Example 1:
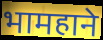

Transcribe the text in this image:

भामहाने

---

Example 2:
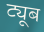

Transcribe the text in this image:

ट्यूब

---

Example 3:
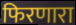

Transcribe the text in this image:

फिरणारा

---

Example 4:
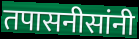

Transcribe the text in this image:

तपासनीसांनी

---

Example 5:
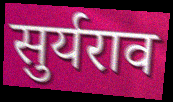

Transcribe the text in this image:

सुर्यराव